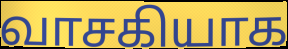
வாசகியாக